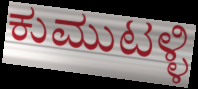
ಕುಮುಟಳ್ಳಿ